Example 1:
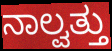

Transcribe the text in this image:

ನಾಲ್ವತ್ತು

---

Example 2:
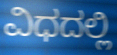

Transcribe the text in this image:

ವಿಧದಲ್ಲಿ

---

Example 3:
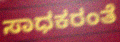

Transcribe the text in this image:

ಸಾಧಕರಂತೆ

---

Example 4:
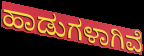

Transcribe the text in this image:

ಹಾಡುಗಳಾಗಿವೆ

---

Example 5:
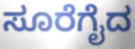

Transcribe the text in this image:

ಸೂರೆಗೈದ